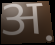
अ़